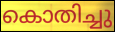
കൊതിച്ചു